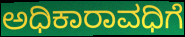
ಅಧಿಕಾರಾವಧಿಗೆ